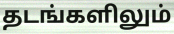
தடங்களிலும்